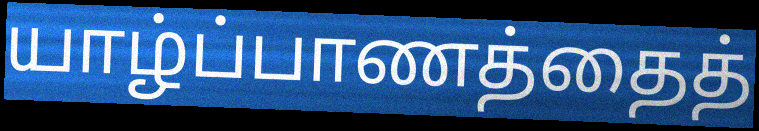
யாழ்ப்பாணத்தைத்